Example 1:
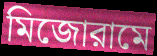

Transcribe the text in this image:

মিজোরামে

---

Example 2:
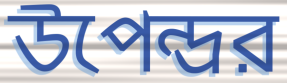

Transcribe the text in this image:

উপেন্দ্রর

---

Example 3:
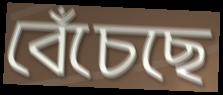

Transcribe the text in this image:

বেঁচেছে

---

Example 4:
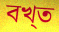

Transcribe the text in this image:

বখ্ত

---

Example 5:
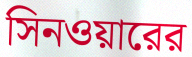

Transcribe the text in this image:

সিনওয়ারের